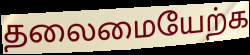
தலைமையேற்க